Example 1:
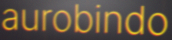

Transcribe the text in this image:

aurobindo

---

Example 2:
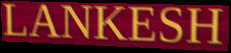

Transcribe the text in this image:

LANKESH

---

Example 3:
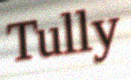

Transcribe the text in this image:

Tully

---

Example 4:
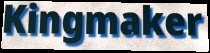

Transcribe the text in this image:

Kingmaker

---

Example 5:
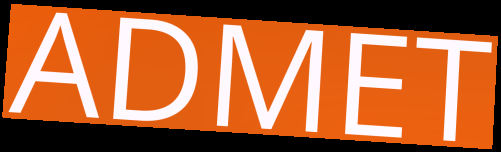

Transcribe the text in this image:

ADMET